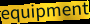
equipment